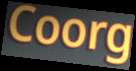
Coorg